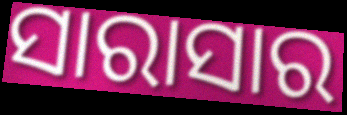
ସାରାସାର